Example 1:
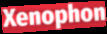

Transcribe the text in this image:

Xenophon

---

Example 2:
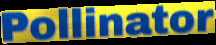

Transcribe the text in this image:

Pollinator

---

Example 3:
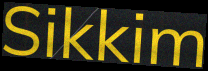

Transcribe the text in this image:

Sikkim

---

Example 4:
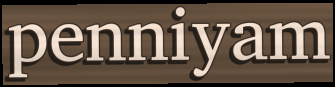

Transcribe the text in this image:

penniyam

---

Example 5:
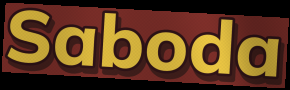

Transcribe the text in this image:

Saboda